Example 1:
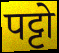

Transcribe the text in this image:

पट्टो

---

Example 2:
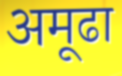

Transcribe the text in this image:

अमूढा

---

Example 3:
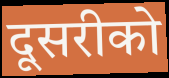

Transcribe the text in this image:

दूसरीको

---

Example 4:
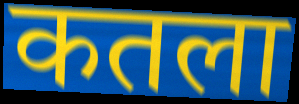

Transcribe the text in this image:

कतला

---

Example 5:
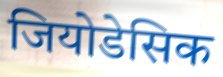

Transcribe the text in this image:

जियोडेसिक